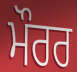
ਮੌਰਰ